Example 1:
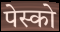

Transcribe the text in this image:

पेस्को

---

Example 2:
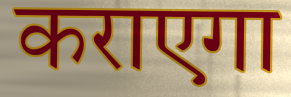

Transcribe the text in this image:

कराएगा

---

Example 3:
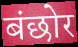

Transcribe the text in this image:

बंछोर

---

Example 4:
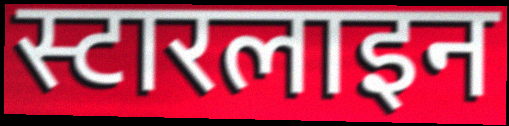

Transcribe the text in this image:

स्टारलाइन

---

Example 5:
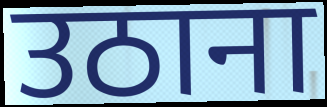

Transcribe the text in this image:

उठाना